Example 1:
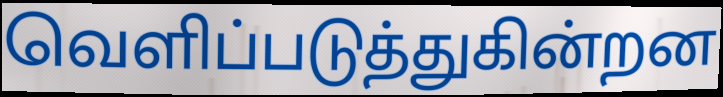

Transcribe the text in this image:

வெளிப்படுத்துகின்றன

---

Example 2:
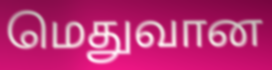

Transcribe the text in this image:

மெதுவான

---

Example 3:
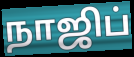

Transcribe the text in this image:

நாஜிப்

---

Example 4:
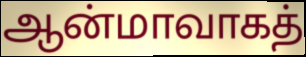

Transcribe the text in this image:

ஆன்மாவாகத்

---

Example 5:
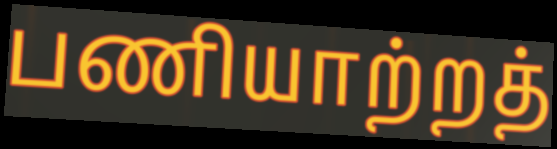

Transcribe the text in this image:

பணியாற்றத்